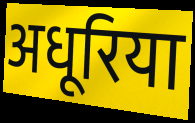
अधूरिया